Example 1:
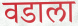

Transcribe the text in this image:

वडाला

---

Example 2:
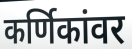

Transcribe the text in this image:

कर्णिकांवर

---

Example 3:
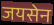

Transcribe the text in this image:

जयसेन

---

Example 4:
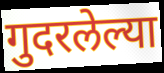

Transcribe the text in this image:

गुदरलेल्या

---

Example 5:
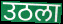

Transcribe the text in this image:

उठला